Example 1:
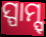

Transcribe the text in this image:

ସ୍ପାମ୍ସ୍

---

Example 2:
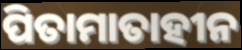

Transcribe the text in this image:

ପିତାମାତାହୀନ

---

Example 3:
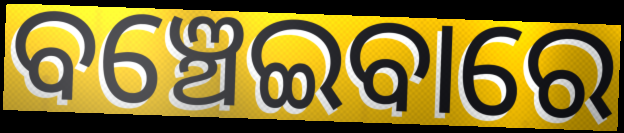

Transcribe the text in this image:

ବଞ୍ଚେଇବାରେ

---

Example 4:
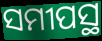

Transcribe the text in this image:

ସମୀପସ୍ଥ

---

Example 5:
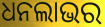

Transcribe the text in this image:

ଧନଲାଭର